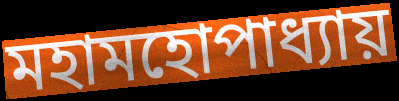
মহামহোপাধ্যায়